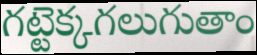
గట్టెక్కగలుగుతాం